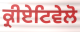
ਕ੍ਰੀਏਟਿਵੇਲੋ